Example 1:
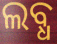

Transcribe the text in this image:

ଲବ୍ଧ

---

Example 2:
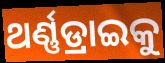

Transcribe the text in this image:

ଥର୍ଣ୍ଣଡ୍ରାଇକୁ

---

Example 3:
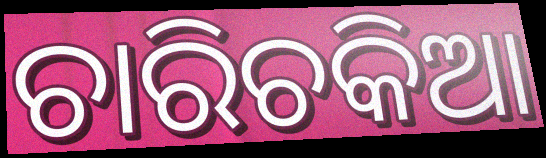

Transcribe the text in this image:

ଚାରିଚକିଆ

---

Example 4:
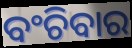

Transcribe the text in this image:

ବଂଚିବାର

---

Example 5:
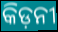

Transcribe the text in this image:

କିଡ଼ନୀ